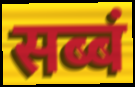
सब्बं